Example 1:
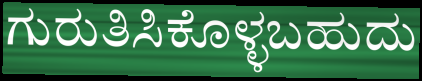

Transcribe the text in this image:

ಗುರುತಿಸಿಕೊಳ್ಳಬಹುದು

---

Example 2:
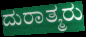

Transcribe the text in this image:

ದುರಾತ್ಮರು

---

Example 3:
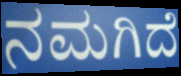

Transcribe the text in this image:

ನಮಗಿದೆ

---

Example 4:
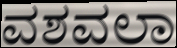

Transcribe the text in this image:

ವಶವಲಾ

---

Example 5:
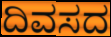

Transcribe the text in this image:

ದಿವಸದ